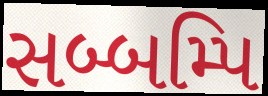
સબ્બમ્પિ